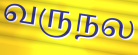
வருநல